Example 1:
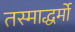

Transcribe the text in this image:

तस्माद्धर्मो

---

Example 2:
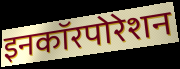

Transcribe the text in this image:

इनकॉरपोरेशन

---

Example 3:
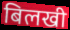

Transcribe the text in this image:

बिलखी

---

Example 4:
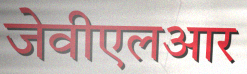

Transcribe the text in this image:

जेवीएलआर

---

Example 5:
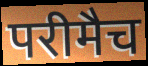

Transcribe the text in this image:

परीमैच